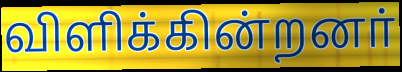
விளிக்கின்றனர்